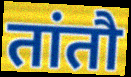
तांतौ